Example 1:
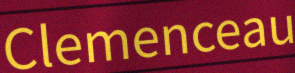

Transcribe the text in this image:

Clemenceau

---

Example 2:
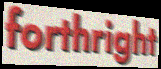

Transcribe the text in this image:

forthright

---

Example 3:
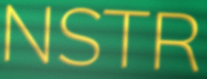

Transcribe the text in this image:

NSTR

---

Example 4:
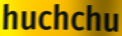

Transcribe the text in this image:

huchchu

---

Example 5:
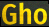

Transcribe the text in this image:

Gho